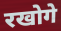
रखोगे